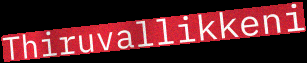
Thiruvallikkeni